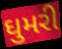
ઘુમરી